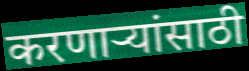
करणार्‍यांसाठी